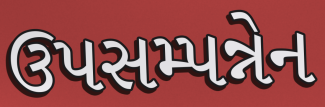
ઉપસમ્પન્નેન